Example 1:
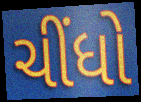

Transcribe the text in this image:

ચીંધો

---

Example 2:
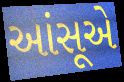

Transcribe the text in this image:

આંસૂએ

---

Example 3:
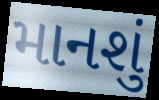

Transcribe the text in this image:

માનશું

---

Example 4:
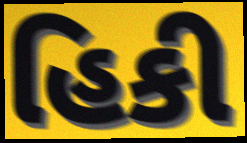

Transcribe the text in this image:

હિકી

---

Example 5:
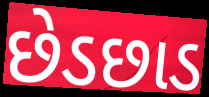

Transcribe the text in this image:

છેડછાડ